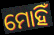
ମୋହିଁ